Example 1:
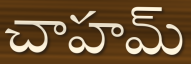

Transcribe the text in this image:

చాహమ్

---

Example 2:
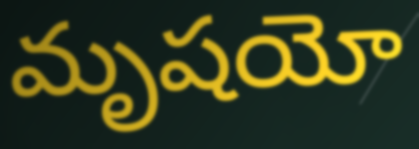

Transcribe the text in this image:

మృషయో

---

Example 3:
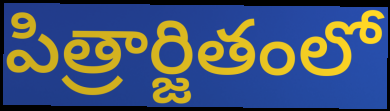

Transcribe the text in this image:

పిత్రార్జితంలో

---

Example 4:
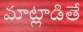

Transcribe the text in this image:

మాట్లాడితే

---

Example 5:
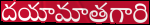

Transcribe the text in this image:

దయామాతగారి